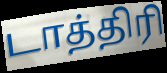
டாத்திரி